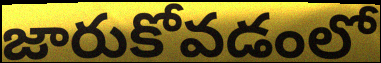
జారుకోవడంలో